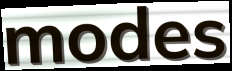
modes